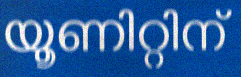
യൂണിറ്റിന്